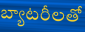
బ్యాటరీలతో